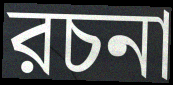
রচনা